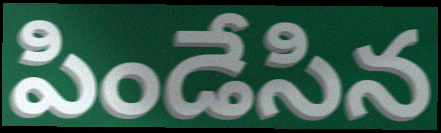
పిండేసిన